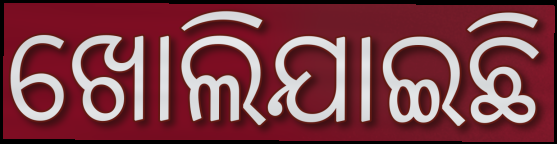
ଖୋଲିଯାଇଛି